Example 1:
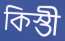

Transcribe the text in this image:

কিস্তী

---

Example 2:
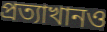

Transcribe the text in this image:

প্রত্যাখানও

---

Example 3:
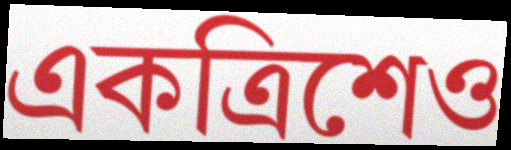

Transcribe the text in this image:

একত্রিশেও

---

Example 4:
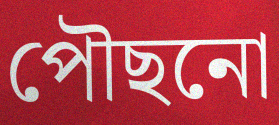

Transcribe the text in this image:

পৌছনো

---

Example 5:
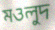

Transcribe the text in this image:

মওলুদ